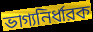
ভাগ্যনির্ধারক